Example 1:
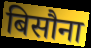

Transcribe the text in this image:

बिसौना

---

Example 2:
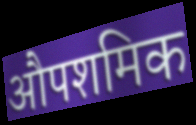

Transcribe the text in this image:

औपशमिक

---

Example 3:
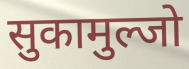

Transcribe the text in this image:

सुकामुल्जो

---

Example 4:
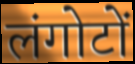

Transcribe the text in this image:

लंगोटों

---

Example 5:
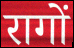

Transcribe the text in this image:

रागों